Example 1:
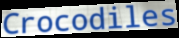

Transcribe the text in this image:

Crocodiles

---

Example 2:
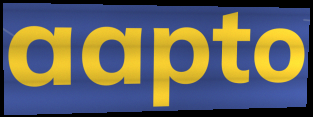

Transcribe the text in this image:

aapto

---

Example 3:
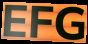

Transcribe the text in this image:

EFG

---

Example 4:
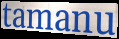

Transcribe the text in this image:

tamanu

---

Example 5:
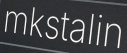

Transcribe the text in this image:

mkstalin